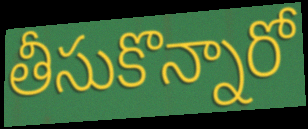
తీసుకొన్నారో